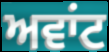
ਅਵਾਂਟ